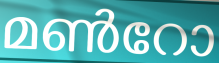
മൺറോ